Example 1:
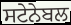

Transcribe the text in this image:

ਸਟੇਨੇਬਲ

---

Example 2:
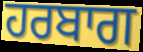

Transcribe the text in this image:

ਹਰਬਾਗ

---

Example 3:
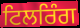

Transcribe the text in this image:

ਟਿਲਰਿੰਗ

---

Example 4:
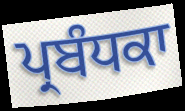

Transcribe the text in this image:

ਪ੍ਰਬੰਧਕਾ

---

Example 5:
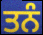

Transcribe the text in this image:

ਤਨੰ